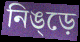
নিঙ্ড়ে